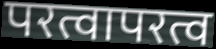
परत्वापरत्व